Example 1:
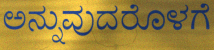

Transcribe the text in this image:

ಅನ್ನುವುದರೊಳಗೆ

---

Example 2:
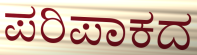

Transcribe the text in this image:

ಪರಿಪಾಕದ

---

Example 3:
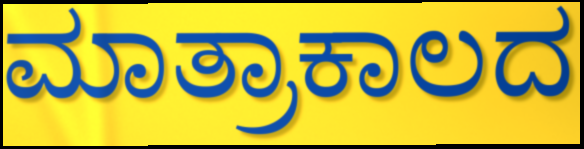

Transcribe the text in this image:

ಮಾತ್ರಾಕಾಲದ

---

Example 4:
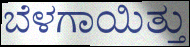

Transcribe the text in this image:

ಬೆಳಗಾಯಿತ್ತು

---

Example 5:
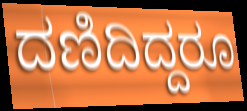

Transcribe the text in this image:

ದಣಿದಿದ್ದರೂ